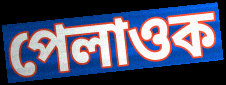
পেলাওক